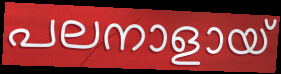
പലനാളായ്